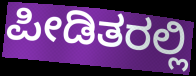
ಪೀಡಿತರಲ್ಲಿ